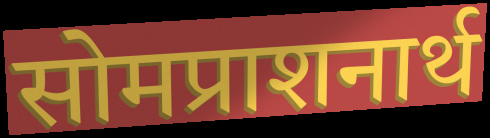
सोमप्राशनार्थ